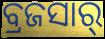
ବ୍ରଜସାର୍